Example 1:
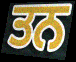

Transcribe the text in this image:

ਤਨ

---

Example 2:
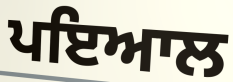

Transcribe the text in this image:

ਪਇਆਲ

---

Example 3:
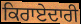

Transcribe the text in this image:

ਕਿਰਾਏਦਾਰੀ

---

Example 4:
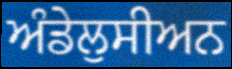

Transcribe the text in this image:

ਅੰਡੇਲੁਸੀਅਨ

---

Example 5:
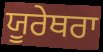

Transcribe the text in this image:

ਯੂਰੇਥਰਾ